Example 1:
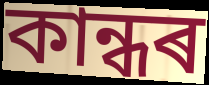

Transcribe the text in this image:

কান্ধৰ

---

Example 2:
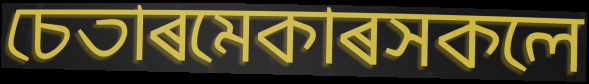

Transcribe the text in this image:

চেতাৰমেকাৰসকলে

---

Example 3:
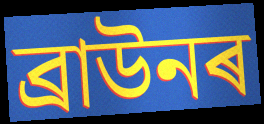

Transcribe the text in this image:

ব্ৰাউনৰ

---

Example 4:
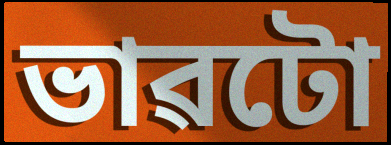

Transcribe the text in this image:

ভাৱটো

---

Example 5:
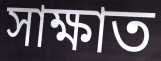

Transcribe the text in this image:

সাক্ষাত